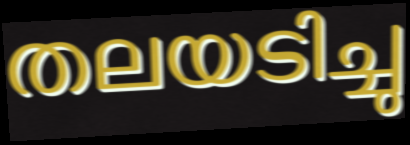
തലയടിച്ചു